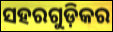
ସହରଗୁଡ଼ିକର